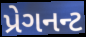
પ્રેગનન્ટ